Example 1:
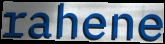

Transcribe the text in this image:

rahene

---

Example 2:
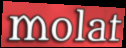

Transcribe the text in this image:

molat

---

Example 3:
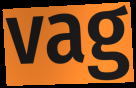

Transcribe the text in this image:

vag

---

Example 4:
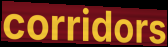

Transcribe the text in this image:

corridors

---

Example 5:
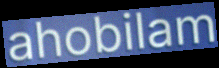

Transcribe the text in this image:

ahobilam